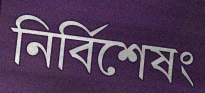
নির্বিশেষং